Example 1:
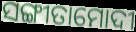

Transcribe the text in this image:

ସଙ୍ଗୀତାମୋଦୀ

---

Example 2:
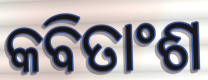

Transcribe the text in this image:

କବିତାଂଶ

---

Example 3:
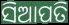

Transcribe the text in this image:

ସିଆପତି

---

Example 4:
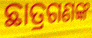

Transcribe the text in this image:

ଛାତ୍ରଗଣଙ୍କ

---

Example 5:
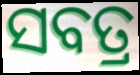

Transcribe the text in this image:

ସବତ୍ର